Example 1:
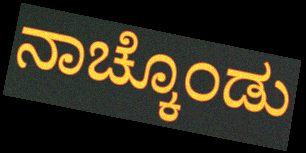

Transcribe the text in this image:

ನಾಚ್ಕೊಂಡು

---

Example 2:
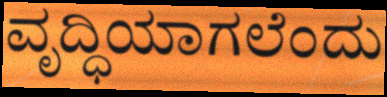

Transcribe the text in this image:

ವೃದ್ಧಿಯಾಗಲೆಂದು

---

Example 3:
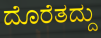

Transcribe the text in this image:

ದೊರೆತದ್ದು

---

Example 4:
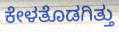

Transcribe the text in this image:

ಕೇಳತೊಡಗಿತ್ತು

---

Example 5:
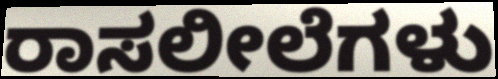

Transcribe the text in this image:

ರಾಸಲೀಲೆಗಳು